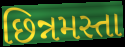
છિન્નમસ્તા